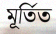
মূৰ্তিত